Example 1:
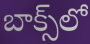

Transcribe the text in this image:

బాక్స్‌లో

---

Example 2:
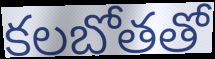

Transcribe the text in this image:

కలబోతతో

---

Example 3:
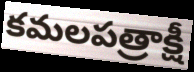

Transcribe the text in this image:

కమలపత్రాక్షీ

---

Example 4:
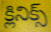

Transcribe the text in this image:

క్లినిక్స్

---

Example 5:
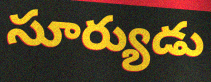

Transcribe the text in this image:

సూర్యుడు